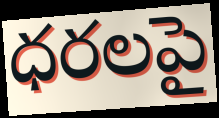
ధరలపై